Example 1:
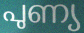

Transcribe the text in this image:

പുണ്യ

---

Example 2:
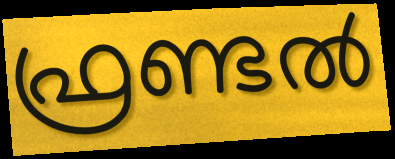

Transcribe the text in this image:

ഫ്രണ്ടൽ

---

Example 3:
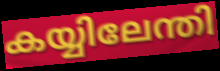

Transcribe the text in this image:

കയ്യിലേന്തി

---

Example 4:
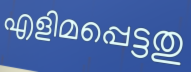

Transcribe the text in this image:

എളിമപ്പെട്ടതു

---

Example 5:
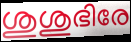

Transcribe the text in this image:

ശുശുഭിരേ